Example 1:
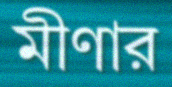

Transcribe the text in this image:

মীণার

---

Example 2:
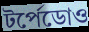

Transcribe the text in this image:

টর্পেডোও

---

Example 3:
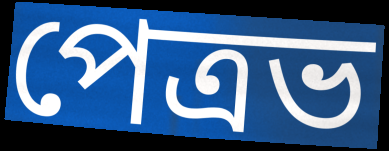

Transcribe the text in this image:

পেত্রভ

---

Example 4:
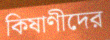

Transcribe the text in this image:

কিষাণীদের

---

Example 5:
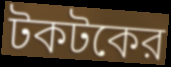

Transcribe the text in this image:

টকটকের